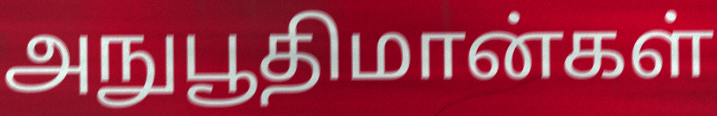
அநுபூதிமான்கள்